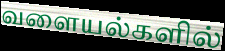
வளையல்களில்